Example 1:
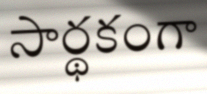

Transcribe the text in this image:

సార్థకంగా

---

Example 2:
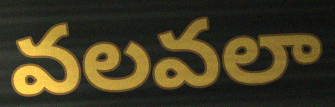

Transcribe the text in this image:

వలవలా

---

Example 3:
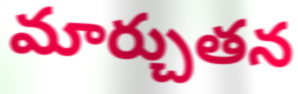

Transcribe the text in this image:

మార్చుతన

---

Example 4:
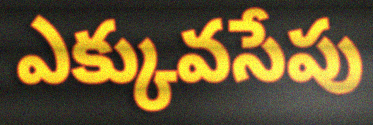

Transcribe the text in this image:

ఎక్కువసేపు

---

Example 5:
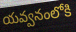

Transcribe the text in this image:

యవ్వనంలోకి